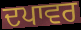
ਦਪਾਵਰ